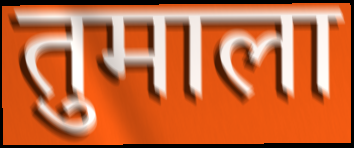
तुमाला